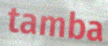
tamba